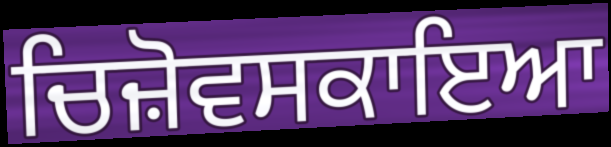
ਚਿਜ਼ੋਵਸਕਾਇਆ